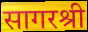
सागरश्री